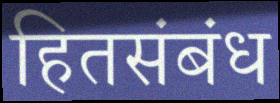
हितसंबंध